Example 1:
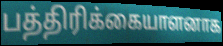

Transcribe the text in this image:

பத்திரிக்கையாளனாக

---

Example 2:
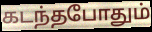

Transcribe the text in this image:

கடந்தபோதும்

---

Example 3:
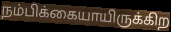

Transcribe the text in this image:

நம்பிக்கையாயிருக்கிற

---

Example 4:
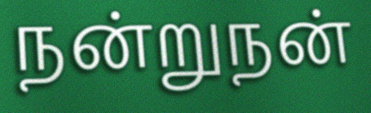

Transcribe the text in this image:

நன்றுநன்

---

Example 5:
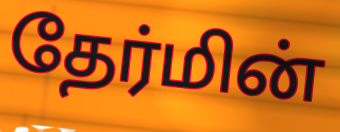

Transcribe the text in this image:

தேர்மின்